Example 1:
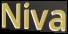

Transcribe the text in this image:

Niva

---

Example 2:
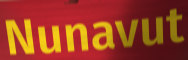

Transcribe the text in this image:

Nunavut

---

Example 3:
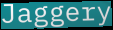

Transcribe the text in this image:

Jaggery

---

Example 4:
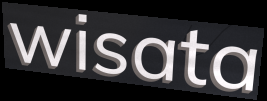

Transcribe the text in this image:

wisata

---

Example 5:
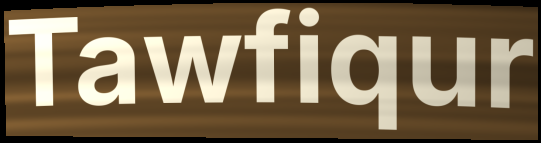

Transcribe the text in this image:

Tawfiqur